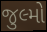
જુલ્મો